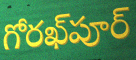
గోరఖ్‌పూర్